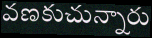
వణకుచున్నారు